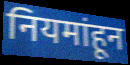
नियमांहून